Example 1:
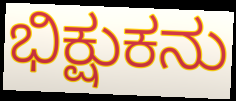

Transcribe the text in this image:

ಭಿಕ್ಷುಕನು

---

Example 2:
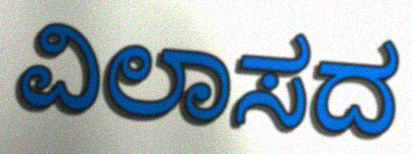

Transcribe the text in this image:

ವಿಲಾಸದ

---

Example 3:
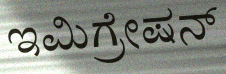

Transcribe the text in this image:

ಇಮಿಗ್ರೇಷನ್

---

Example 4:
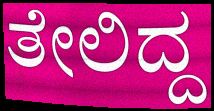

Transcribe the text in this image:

ತೇಲಿದ್ದ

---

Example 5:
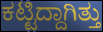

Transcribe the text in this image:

ಕಟ್ಟಿದ್ದಾಗಿತ್ತು